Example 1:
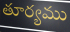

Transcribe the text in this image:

తూర్యము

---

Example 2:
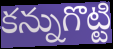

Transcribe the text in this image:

కన్నుగొట్టి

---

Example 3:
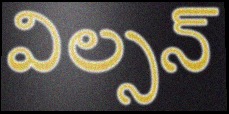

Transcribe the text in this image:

విల్సన్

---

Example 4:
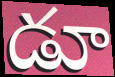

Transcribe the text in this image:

డూ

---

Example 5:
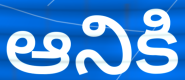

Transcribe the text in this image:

ఆనికి